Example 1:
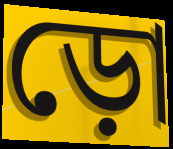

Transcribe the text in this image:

ড়ো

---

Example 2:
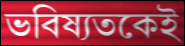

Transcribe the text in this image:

ভবিষ্যতকেই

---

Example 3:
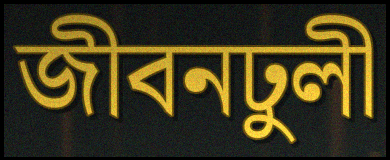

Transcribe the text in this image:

জীবনঢুলী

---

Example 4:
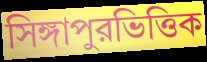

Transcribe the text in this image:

সিঙ্গাপুরভিত্তিক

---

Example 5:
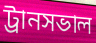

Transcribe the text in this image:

ট্রানসভাল